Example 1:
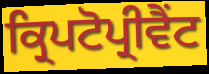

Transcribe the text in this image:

ਕ੍ਰਿਪਟੋਪ੍ਰੀਵੈਂਟ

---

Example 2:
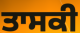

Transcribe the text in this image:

ਤਾਸਕੀ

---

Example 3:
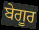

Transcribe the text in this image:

ਬੇਗੂਰ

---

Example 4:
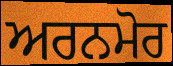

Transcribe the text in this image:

ਅਰਨਮੋਰ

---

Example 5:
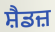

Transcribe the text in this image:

ਸ਼ੈਡਜ਼